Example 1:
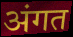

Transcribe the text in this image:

अंगत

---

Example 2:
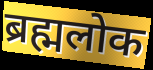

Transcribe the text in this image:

ब्रह्मलोक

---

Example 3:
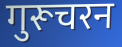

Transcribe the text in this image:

गुरूचरन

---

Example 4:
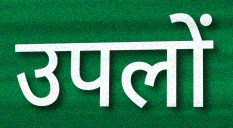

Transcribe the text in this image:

उपलों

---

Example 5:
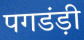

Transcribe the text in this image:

पगडंड़ी